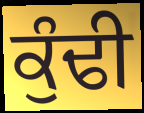
ਕੁੰਢੀ